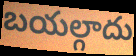
బయల్గాదు